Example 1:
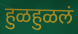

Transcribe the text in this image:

हुळहुळलं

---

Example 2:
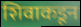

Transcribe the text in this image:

शिवाकडून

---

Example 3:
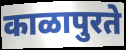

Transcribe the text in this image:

काळापुरते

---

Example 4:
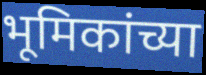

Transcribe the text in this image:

भूमिकांच्या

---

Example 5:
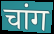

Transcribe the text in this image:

चांग